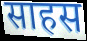
साहस